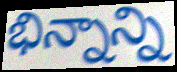
భిన్నాన్ని